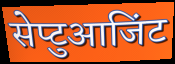
सेप्टुआजिंट